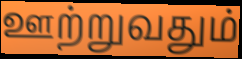
ஊற்றுவதும்